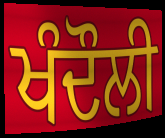
ਖੰਦੌਲੀ